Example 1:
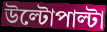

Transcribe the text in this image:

উল্টোপাল্টা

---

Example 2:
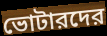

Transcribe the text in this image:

ভোটারদের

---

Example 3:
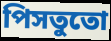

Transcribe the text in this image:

পিসতুতো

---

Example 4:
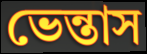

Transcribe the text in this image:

ভেন্তাস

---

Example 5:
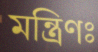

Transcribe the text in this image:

মন্ত্রিণঃ